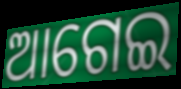
ଆଗେଇ